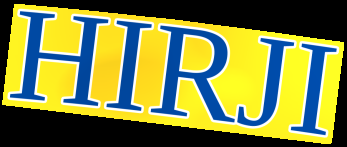
HIRJI